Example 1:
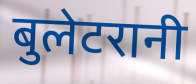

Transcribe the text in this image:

बुलेटरानी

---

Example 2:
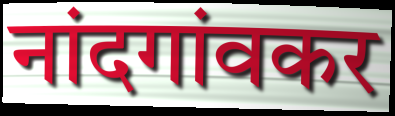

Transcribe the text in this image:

नांदगांवकर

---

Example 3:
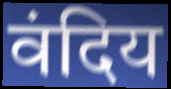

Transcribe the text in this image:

वंदिय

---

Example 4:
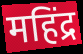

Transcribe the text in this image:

महिंद्र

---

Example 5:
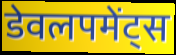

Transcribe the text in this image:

डेवलपमेंट्स